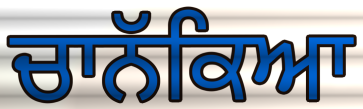
ਚਾਨੱਕਿਆ